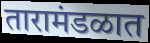
तारामंडळात